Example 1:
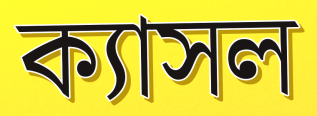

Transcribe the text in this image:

ক্যাসল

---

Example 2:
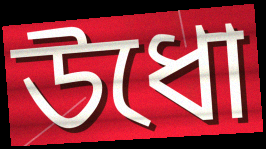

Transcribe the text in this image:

উধো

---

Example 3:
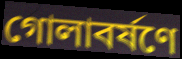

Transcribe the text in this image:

গোলাবর্ষণে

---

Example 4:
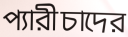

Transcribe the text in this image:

প্যারীচাদের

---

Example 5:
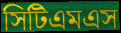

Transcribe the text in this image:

সিটিএমএস